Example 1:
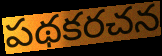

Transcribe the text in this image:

పథకరచన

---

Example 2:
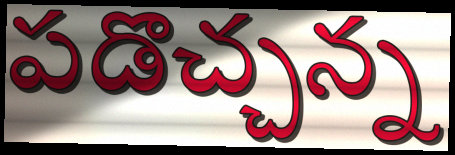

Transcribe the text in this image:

పడొచ్చన్న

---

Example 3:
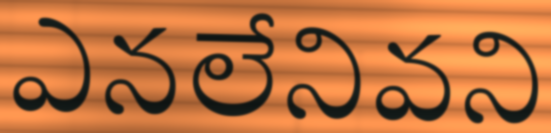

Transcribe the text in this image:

ఎనలేనివని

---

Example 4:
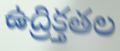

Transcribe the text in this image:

ఉద్రిక్తతల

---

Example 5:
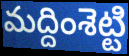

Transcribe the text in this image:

మద్దింశెట్టి